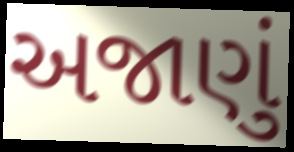
અજાણું